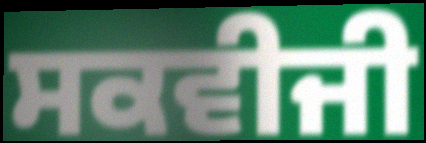
ਸਕਵੀਜੀ